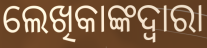
ଲେଖିକାଙ୍କଦ୍ୱାରା